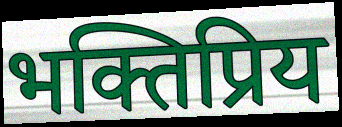
भक्तिप्रिय